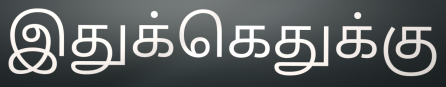
இதுக்கெதுக்கு